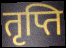
तृप्ति